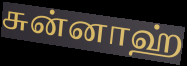
சுன்னாஹ்